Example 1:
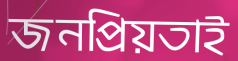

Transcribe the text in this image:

জনপ্রিয়তাই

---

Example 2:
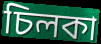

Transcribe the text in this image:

চিলকা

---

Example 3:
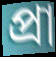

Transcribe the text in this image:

প্রা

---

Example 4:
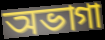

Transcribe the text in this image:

অভাগা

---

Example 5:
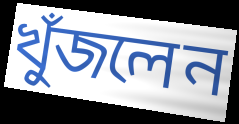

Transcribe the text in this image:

খুঁজলেন